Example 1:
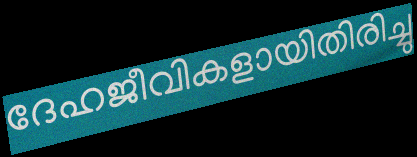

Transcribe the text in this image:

ദേഹജീവികളായിതിരിച്ചു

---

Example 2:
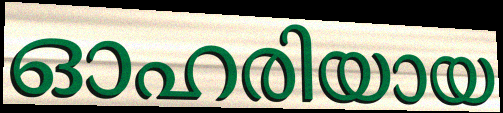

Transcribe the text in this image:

ഓഹരിയായ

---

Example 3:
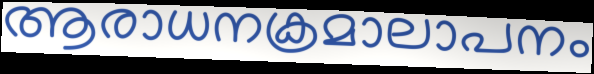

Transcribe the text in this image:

ആരാധനക്രമാലാപനം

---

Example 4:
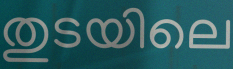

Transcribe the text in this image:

തുടയിലെ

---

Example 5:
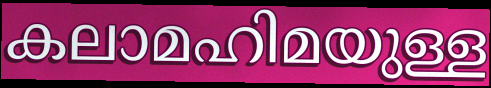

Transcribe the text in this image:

കലാമഹിമയുള്ള